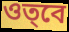
ওত্‌বে